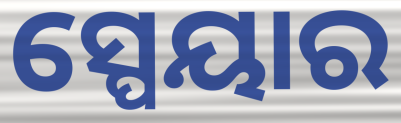
ସ୍ପେୟାର